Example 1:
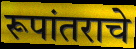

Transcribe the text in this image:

रूपांतराचे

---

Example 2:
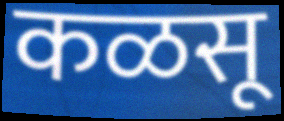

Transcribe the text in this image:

कळसू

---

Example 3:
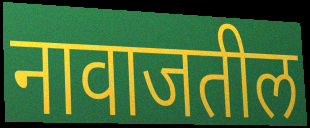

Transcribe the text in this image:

नावाजतील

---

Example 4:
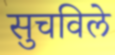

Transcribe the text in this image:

सुचविले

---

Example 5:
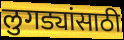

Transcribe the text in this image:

लुगड्यांसाठी